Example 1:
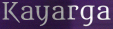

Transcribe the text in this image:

Kayarga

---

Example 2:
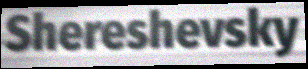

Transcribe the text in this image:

Shereshevsky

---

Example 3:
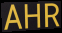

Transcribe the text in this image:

AHR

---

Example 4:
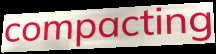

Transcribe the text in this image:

compacting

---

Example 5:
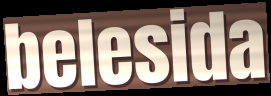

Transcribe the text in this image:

belesida